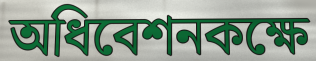
অধিবেশনকক্ষে